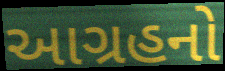
આગ્રહનો